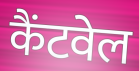
कैंटवेल